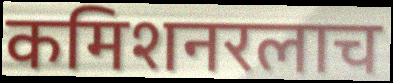
कमिशनरलाच